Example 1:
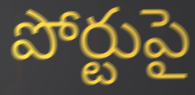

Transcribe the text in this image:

పోర్టుపై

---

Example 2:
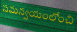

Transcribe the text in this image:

సమన్వయంలోంచి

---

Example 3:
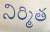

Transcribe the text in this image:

నిర్మిత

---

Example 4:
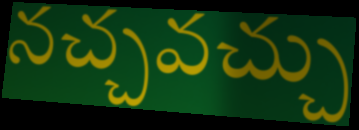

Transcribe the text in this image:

నచ్చవచ్చు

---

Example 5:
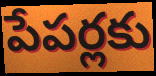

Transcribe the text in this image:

పేపర్లకు